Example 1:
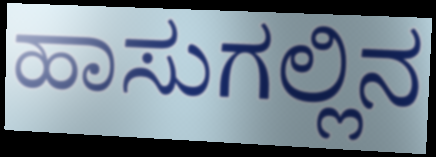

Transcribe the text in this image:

ಹಾಸುಗಲ್ಲಿನ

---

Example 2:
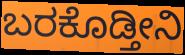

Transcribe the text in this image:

ಬರಕೊಡ್ತೀನಿ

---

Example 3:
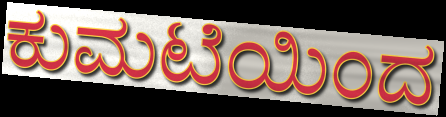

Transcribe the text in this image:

ಕುಮಟೆಯಿಂದ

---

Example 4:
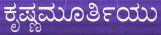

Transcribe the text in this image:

ಕೃಷ್ಣಮೂರ್ತಿಯು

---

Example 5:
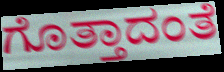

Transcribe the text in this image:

ಗೊತ್ತಾದಂತೆ